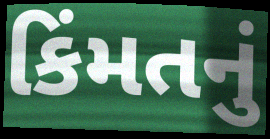
કિંમતનું